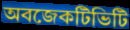
অবজেকটিভিটি